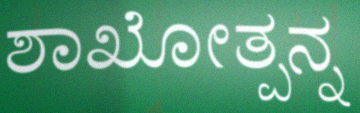
ಶಾಖೋತ್ಪನ್ನ